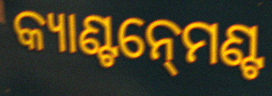
କ୍ୟାଣ୍ଟନ୍‍ମେଣ୍ଟ